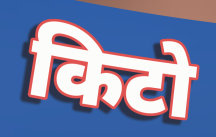
किटो